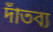
দাঁতব্য